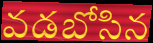
వడబోసిన